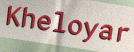
Kheloyar